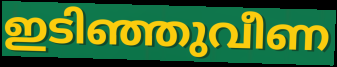
ഇടിഞ്ഞുവീണ